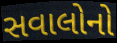
સવાલોનો